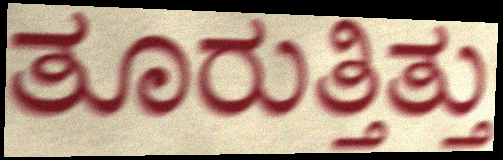
ತೂರುತ್ತಿತ್ತು